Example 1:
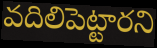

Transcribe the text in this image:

వదిలిపెట్టారని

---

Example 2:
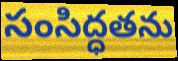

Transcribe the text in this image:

సంసిద్ధతను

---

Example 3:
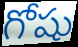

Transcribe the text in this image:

గోషు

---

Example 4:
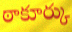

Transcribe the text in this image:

ఠాకూర్కు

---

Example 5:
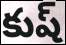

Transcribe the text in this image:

కుష్